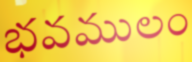
భవములం